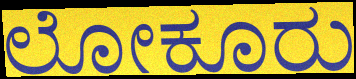
ಲೋಕೂರು